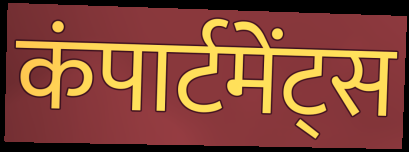
कंपार्टमेंट्स